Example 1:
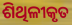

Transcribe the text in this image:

ଶିଥିଳୀକୃତ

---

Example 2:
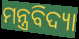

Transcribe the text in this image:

ମନ୍ତ୍ରବିଦ୍ୟା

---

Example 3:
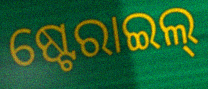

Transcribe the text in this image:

ଷ୍ଟେରାଇଲ୍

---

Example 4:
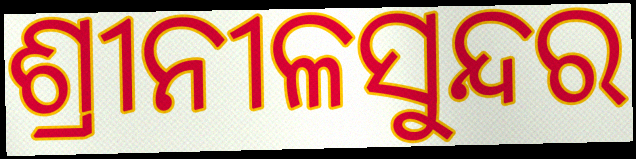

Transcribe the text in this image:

ଶ୍ରୀନୀଳସୁନ୍ଦର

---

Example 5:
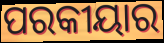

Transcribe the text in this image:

ପରକୀୟାର